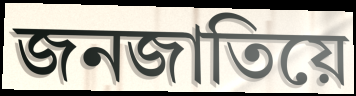
জনজাতিয়ে